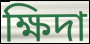
ক্ষিদা